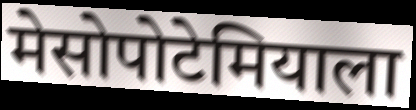
मेसोपोटेमियाला